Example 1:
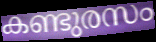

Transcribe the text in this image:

കണ്ടുരസം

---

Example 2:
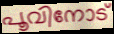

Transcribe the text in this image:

പൂവിനോട്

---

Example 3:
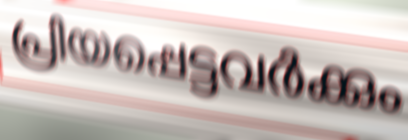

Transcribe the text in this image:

പ്രിയപ്പെട്ടവർക്കും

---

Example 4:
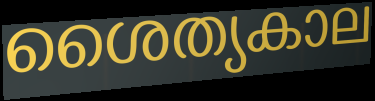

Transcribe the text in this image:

ശൈത്യകാല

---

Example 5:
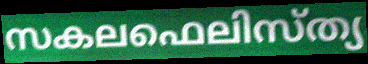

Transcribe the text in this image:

സകലഫെലിസ്ത്യ